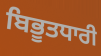
ਬਿਭੂਤਧਾਰੀ